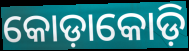
କୋଡ଼ାକୋଡ଼ି